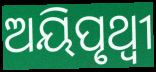
ଅୟିପୃଥ୍ୱୀ